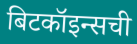
बिटकॉइन्सची